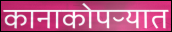
कानाकोपऱ्यात